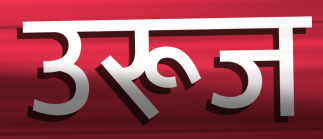
उरूज